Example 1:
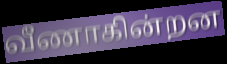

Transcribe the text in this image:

வீணாகின்றன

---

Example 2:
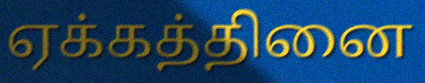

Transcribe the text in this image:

ஏக்கத்தினை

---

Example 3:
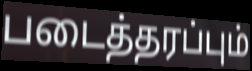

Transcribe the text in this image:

படைத்தரப்பும்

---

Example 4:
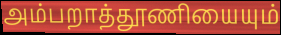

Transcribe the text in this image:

அம்பறாத்தூணியையும்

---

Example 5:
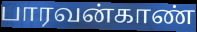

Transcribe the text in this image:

பாரவன்காண்